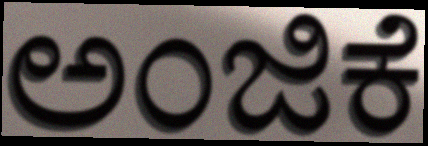
ಅಂಜಿಕೆ